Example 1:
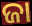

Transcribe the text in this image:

ଜା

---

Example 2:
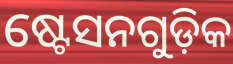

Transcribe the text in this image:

ଷ୍ଟେସନଗୁଡ଼ିକ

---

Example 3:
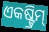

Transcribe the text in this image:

ଏକଷ୍ଟ୍ରିମ୍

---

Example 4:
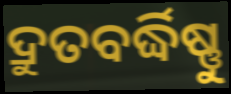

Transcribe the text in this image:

ଦ୍ରୁତବର୍ଦ୍ଧିଷ୍ଣୁ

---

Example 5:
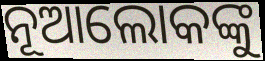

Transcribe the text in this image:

ନୂଆଲୋକଙ୍କୁ